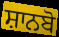
ਸ਼ਾਨਬੋ